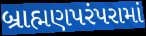
બ્રાહ્મણપરંપરામાં